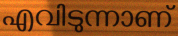
എവിടുന്നാണ്